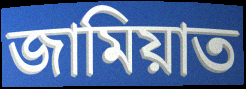
জামিয়াত